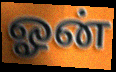
ஓன்